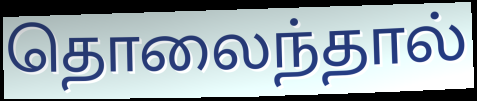
தொலைந்தால்